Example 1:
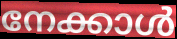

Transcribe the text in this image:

നേക്കാൾ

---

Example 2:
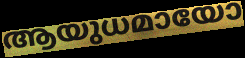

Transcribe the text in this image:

ആയുധമായോ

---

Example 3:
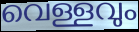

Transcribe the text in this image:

വെള്ളവും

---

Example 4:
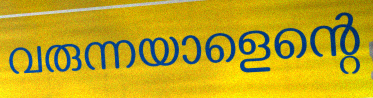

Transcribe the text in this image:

വരുന്നയാളെന്റെ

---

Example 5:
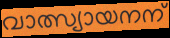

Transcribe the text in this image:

വാത്സ്യായനന്